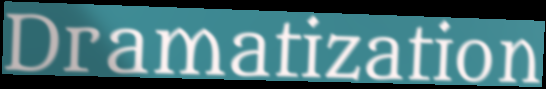
Dramatization